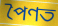
পৈণত